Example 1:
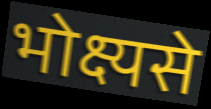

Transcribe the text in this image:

भोक्ष्यसे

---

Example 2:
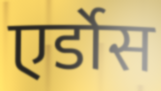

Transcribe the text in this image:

एर्डोस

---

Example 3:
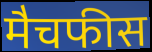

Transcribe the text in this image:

मैचफीस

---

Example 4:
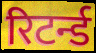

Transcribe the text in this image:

रिटर्न्ड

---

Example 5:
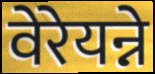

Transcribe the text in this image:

वेरेयन्ने